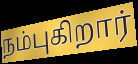
நம்புகிறார்